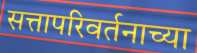
सत्तापरिवर्तनाच्या